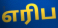
எரிப